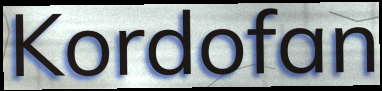
Kordofan